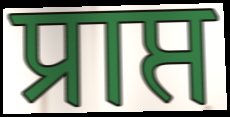
प्राप्त